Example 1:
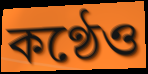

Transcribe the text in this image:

কণ্ঠেও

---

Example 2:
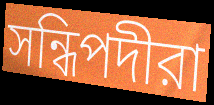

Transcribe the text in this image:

সন্ধিপদীরা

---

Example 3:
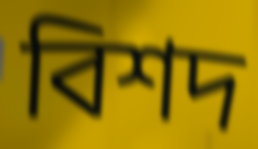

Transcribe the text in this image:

বিশদ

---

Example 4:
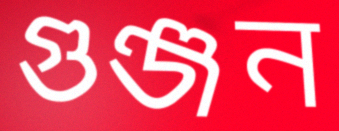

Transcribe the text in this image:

গুঞ্জন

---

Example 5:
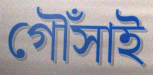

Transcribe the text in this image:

গৌঁসাই